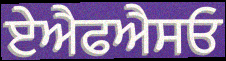
ਏਐਫਐਸਓ